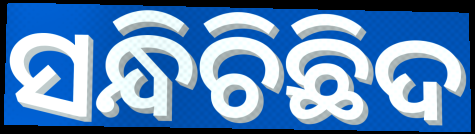
ସନ୍ଧିଚିଛିଦ